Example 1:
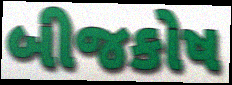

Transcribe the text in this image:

બીજકોષ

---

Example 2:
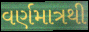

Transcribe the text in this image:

વર્ણમાત્રથી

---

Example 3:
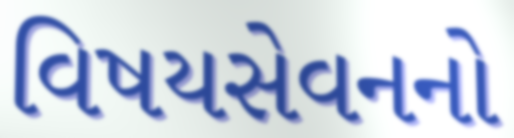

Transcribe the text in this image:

વિષયસેવનનો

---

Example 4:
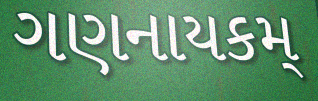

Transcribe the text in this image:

ગણનાયકમ્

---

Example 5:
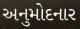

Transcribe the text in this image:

અનુમોદનાર